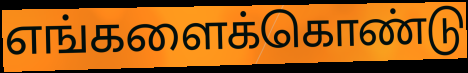
எங்களைக்கொண்டு